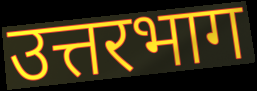
उत्तरभाग